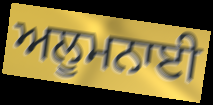
ਅਲੂਮਨਾਈ